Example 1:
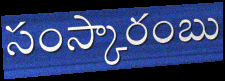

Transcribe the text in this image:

సంస్కారంబు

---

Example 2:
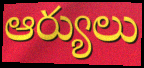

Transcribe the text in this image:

ఆర్యులు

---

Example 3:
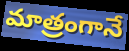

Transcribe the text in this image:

మాత్రంగానే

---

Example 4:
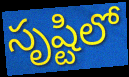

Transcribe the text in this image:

సృష్టిలో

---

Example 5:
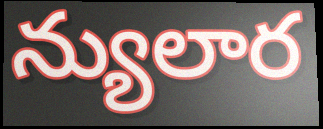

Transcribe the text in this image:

న్యులార